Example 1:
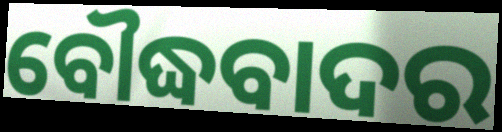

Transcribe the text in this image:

ବୌଦ୍ଧବାଦର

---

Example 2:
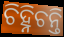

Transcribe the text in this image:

ଚିହ୍ନିଚନ୍ତି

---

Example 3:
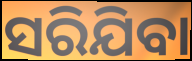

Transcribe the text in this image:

ସରିଯିବା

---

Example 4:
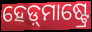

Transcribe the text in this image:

ହେଡ଼୍‍ମାଷ୍ଟ୍ରେ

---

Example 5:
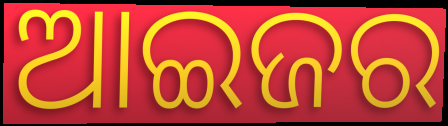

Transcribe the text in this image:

ଆଇଜର